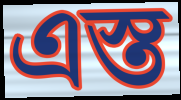
এস্ত